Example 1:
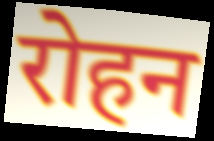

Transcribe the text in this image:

रोहन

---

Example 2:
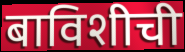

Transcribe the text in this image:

बाविशीची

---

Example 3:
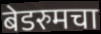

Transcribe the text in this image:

बेडरुमचा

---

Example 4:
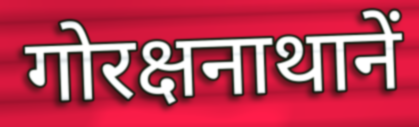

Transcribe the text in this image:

गोरक्षनाथानें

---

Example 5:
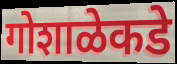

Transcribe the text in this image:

गोशाळेकडे